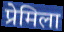
प्रेमिला